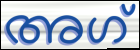
അഗ്